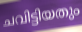
ചവിട്ടിയതും